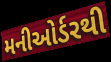
મનીઓર્ડરથી